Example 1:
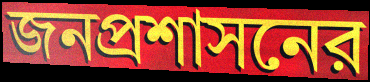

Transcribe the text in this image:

জনপ্রশাসনের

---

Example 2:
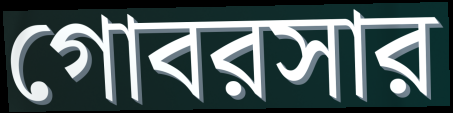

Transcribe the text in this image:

গোবরসার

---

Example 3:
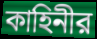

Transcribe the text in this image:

কাহিনীর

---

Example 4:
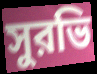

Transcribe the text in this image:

সুরভি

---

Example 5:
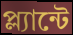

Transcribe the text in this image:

প্ল্যান্টে